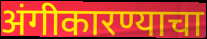
अंगीकारण्याचा